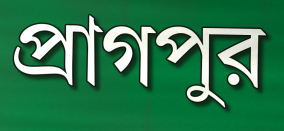
প্রাগপুর